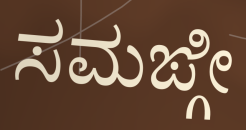
ಸಮಙ್ಗೀ